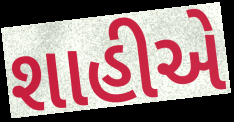
શાહીએ